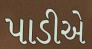
પાડીએ